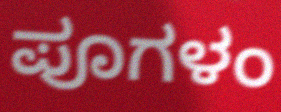
ಪೂಗಳಂ